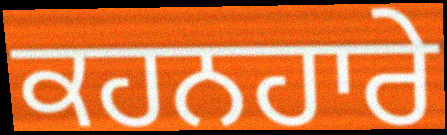
ਕਹਨਹਾਰੇ